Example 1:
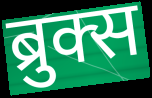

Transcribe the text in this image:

ब्रुक्‍स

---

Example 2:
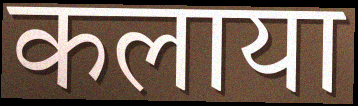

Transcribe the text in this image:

कलाया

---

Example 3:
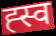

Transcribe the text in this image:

ह्स्व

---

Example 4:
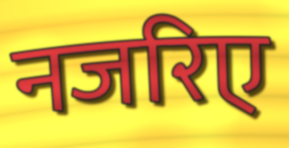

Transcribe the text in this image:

नजरिए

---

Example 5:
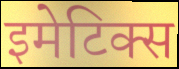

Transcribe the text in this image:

इमेटिक्स